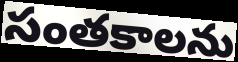
సంతకాలను